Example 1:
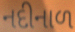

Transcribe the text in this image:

નદીનાળ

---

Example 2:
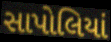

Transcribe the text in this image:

સાપોલિયાં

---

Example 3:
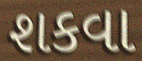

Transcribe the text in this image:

શકવા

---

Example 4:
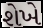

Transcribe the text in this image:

શેખે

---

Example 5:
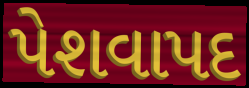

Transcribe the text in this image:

પેશવાપદ